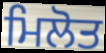
ਮਿਲੋਤ